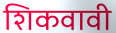
शिकवावी